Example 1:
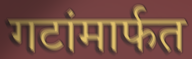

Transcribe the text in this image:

गटांमार्फत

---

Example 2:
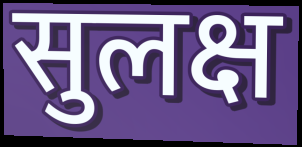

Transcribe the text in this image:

सुलक्ष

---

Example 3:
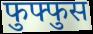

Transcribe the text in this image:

फुफ्फुस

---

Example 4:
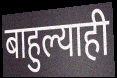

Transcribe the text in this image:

बाहुल्याही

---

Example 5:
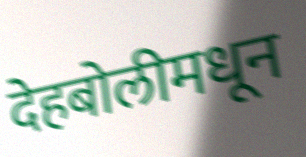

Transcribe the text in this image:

देहबोलीमधून